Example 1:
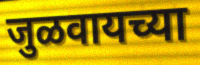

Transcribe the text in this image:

जुळवायच्या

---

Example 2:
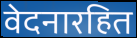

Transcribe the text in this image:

वेदनारहित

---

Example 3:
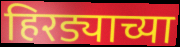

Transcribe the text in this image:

हिरड्याच्या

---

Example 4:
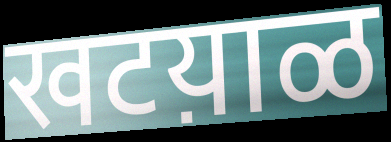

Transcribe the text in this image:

खटय़ाळ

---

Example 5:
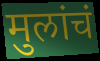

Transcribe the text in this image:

मुलांचं